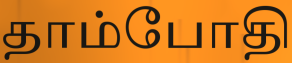
தாம்போதி